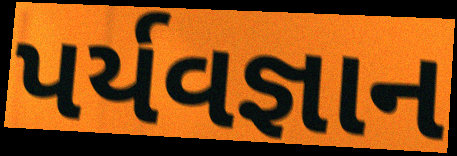
પર્યવજ્ઞાન